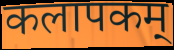
कलापकम्